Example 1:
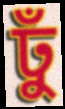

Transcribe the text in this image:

ঢুঁ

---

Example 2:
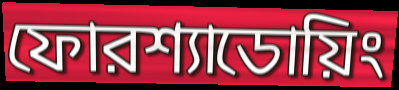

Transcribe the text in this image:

ফোরশ্যাডোয়িং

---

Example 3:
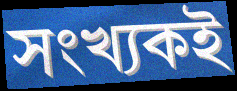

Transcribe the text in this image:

সংখ্যকই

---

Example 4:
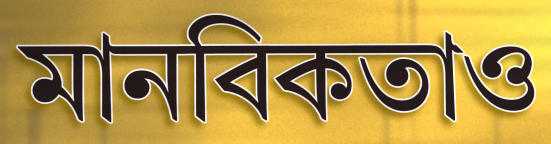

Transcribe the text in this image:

মানবিকতাও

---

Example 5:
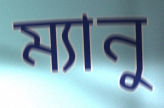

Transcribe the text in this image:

ম্যানু